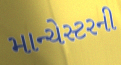
માન્ચેસ્ટરની